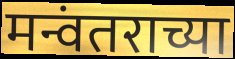
मन्वंतराच्या